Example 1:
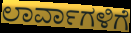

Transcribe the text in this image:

ಲಾರ್ವಾಗಳಿಗೆ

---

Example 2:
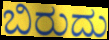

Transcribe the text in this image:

ಬಿರುದು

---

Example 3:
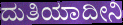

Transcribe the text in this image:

ದುತಿಯಾದೀನಿ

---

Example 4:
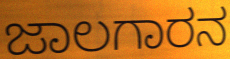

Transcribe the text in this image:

ಜಾಲಗಾರನ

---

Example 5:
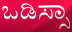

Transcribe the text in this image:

ಒಡಿಸ್ಸಾ